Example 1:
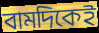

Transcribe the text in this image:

বামদিকেই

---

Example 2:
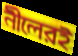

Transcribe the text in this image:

নীলেরই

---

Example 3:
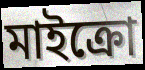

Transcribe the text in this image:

মাইক্রো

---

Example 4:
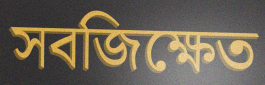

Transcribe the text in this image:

সবজিক্ষেত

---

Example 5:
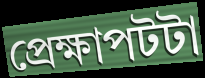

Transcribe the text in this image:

প্রেক্ষাপটটা